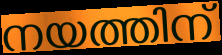
നയത്തിന്